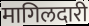
मागिलदारी